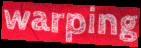
warping